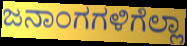
ಜನಾಂಗಗಳಿಗೆಲ್ಲಾ